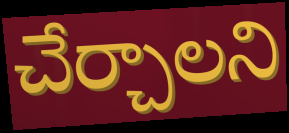
చేర్చాలని